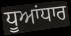
ਧੂਆਂਧਾਰ